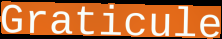
Graticule